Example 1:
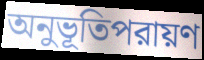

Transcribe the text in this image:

অনুভূতিপরায়ণ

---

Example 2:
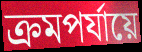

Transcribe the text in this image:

ক্রমপর্যায়ে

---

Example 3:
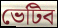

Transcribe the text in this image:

ভেটিব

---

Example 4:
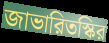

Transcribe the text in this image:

জাভারিতস্কির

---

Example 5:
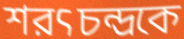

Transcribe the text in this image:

শরৎচন্দ্রকে